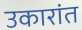
उकारांत